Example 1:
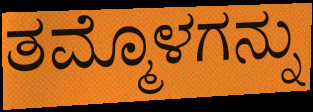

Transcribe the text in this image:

ತಮ್ಮೊಳಗನ್ನು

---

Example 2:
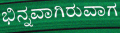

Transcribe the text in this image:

ಭಿನ್ನವಾಗಿರುವಾಗ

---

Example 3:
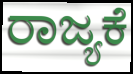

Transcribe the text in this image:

ರಾಜ್ಯಕೆ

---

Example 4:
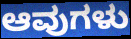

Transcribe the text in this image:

ಆವುಗಳು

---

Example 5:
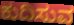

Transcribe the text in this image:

ಕುದಿಸುವ